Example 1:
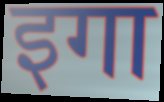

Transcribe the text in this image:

इगा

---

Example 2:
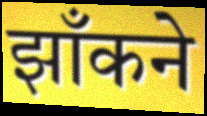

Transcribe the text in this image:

झाँकने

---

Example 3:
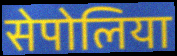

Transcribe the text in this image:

सेपोलिया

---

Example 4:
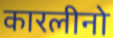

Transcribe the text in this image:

कारलीनो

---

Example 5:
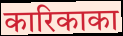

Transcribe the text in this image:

कारिकाका